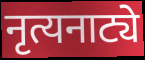
नृत्यनाट्ये